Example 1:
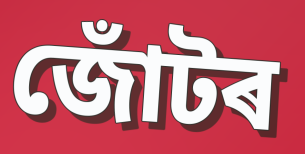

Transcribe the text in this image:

জোঁটৰ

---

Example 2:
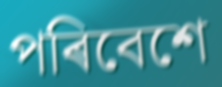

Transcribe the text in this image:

পৰিবেশে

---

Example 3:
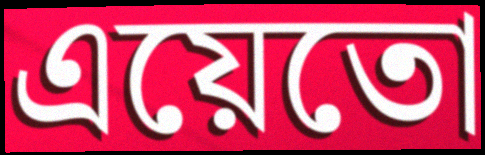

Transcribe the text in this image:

এয়েতো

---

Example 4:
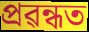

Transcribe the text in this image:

প্ৰৱন্ধত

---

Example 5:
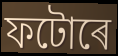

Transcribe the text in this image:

ফটোৰে